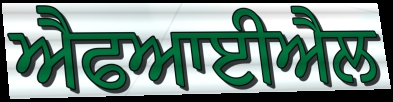
ਐਫਆਈਐਲ